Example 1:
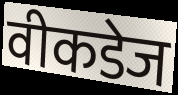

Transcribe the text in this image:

वीकडेज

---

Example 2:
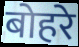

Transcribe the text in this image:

बोहरे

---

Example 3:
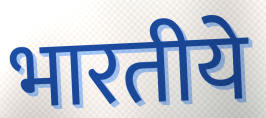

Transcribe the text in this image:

भारतीये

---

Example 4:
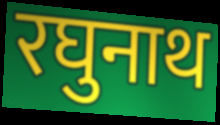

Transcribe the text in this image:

रघुनाथ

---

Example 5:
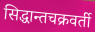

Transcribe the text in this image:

सिद्धान्तचक्रवर्ती